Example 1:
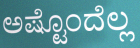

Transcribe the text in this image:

ಅಷ್ಟೊಂದೆಲ್ಲ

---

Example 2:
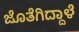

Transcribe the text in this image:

ಜೊತೆಗಿದ್ದಾಳೆ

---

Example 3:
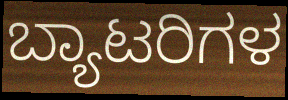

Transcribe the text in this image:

ಬ್ಯಾಟರಿಗಳ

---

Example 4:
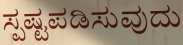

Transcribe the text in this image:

ಸ್ಪಷ್ಟಪಡಿಸುವುದು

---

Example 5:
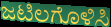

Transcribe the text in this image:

ಜಟಿಲಗೊಳಿಸಿ